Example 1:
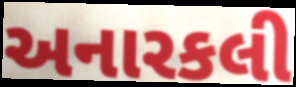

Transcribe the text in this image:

અનારકલી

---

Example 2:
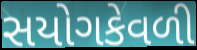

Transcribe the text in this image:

સયોગકેવળી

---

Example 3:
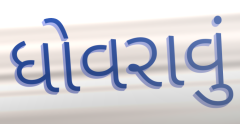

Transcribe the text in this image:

ધોવરાવું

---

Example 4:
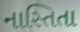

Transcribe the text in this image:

નાસ્તિતા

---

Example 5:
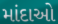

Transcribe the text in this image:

માંદાઓ